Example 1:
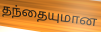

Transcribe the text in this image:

தந்தையுமான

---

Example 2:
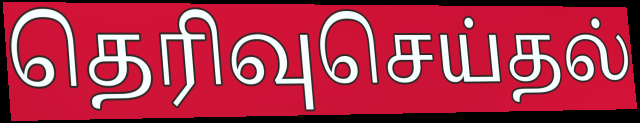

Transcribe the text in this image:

தெரிவுசெய்தல்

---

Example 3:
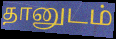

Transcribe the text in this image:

தானுடம்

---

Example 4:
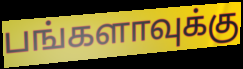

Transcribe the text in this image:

பங்களாவுக்கு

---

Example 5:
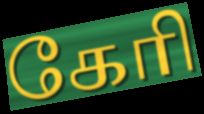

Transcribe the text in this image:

கேரி